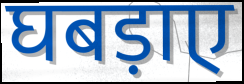
घबड़ाए